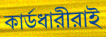
কার্ডধারীরাই